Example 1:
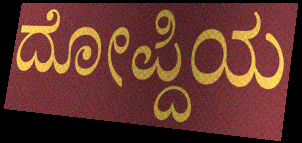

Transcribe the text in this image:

ದೋಪ್ದಿಯ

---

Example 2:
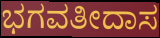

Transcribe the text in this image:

ಭಗವತೀದಾಸ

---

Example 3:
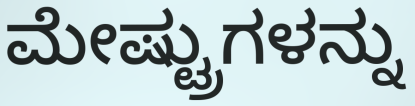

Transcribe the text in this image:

ಮೇಷ್ಟ್ರುಗಳನ್ನು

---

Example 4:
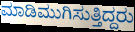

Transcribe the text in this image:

ಮಾಡಿಮುಗಿಸುತ್ತಿದ್ದರು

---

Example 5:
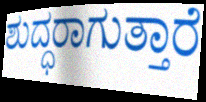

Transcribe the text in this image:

ಶುದ್ಧರಾಗುತ್ತಾರೆ